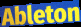
Ableton